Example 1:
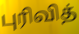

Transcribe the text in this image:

புரிவித்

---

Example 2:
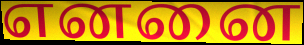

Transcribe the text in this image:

எனனை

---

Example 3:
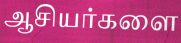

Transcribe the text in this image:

ஆசியர்களை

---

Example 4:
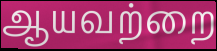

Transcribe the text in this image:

ஆயவற்றை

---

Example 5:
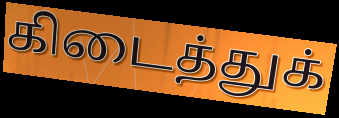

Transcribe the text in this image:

கிடைத்துக்